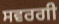
ਸਵਰਗੀ